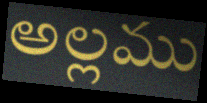
అల్లము